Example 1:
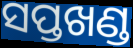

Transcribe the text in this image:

ସପ୍ତଖଣ୍ଡ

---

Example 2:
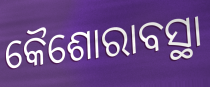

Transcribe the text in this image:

କୈଶୋରାବସ୍ଥା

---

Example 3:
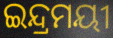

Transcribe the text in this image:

ଇନ୍ଦ୍ରମୟୀ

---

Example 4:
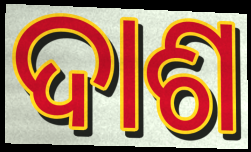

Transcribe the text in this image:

ଦାଶ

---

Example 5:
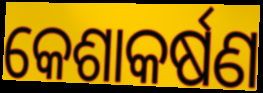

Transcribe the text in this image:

କେଶାକର୍ଷଣ